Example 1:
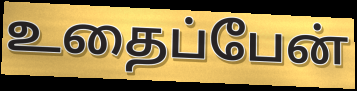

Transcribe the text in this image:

உதைப்பேன்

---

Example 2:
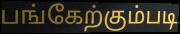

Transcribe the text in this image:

பங்கேற்கும்படி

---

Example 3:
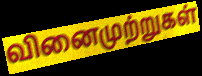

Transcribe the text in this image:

வினைமுற்றுகள்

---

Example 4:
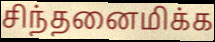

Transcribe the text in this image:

சிந்தனைமிக்க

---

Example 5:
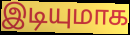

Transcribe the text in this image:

இடியுமாக